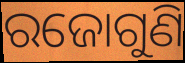
ରଜୋଗୁଣି